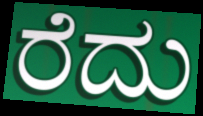
ರೆದು